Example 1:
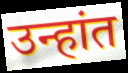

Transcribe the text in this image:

उन्हांत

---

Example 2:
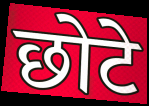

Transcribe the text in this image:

छोटे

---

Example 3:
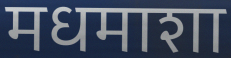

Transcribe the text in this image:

मधमाशा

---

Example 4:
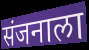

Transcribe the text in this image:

संजनाला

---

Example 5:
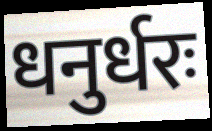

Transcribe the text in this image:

धनुर्धरः